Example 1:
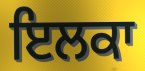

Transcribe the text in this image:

ਇਲਕਾ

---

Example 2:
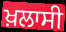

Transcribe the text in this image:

ਖ਼ਲਾਸੀ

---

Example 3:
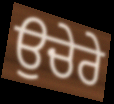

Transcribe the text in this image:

ਉਚੇਰੇ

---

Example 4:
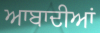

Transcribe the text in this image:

ਆਬਾਦੀਆਂ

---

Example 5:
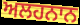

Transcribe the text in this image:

ਅਲਹਨਾਨ